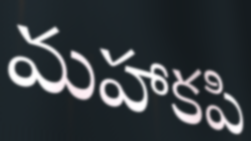
మహాకపి